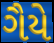
ગૈયે